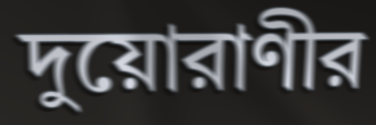
দুয়োরাণীর